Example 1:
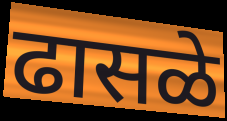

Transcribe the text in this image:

ढासळे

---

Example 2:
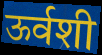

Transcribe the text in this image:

ऊर्वशी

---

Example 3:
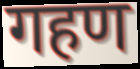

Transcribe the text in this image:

गहण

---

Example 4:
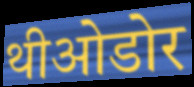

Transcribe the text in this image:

थीओडोर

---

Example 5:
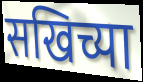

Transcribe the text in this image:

सखिच्या